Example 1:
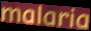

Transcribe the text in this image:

malaria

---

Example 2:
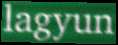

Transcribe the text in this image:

lagyun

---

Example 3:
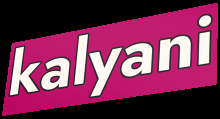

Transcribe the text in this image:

kalyani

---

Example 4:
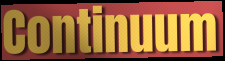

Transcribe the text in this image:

Continuum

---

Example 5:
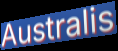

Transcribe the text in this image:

Australis